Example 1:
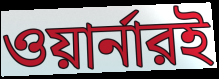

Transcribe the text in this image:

ওয়ার্নারই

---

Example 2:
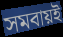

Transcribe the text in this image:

সমবায়ই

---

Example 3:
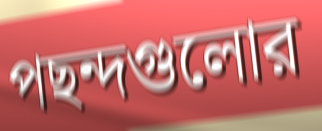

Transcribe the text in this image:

পছন্দগুলোর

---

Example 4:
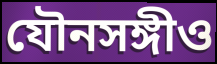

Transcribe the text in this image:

যৌনসঙ্গীও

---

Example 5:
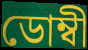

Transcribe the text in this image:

ডোম্বী